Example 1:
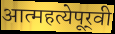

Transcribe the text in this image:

आत्महत्येपूर्वी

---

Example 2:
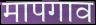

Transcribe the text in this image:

मापगाव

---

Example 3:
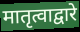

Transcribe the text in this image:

मातृत्वाद्वारे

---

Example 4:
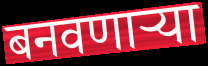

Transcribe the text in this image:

बनवणार्‍या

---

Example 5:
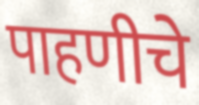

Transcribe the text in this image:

पाहणीचे